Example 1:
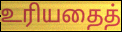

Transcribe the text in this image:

உரியதைத்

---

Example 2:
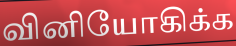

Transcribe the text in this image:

வினியோகிக்க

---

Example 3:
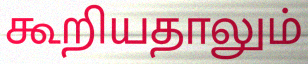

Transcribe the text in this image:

கூறியதாலும்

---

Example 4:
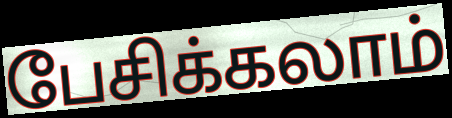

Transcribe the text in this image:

பேசிக்கலாம்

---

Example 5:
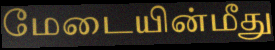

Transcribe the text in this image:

மேடையின்மீது